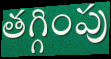
తగ్గింపు